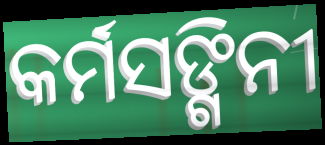
କର୍ମସଙ୍ଗିନୀ